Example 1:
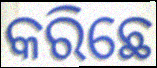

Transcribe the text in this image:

କରିଛେ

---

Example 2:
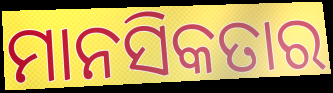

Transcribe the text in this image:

ମାନସିକତାର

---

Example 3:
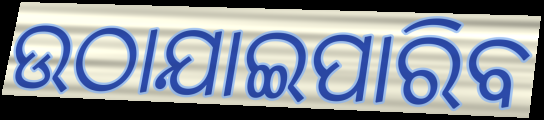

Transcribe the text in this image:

ଉଠାଯାଇପାରିବ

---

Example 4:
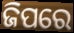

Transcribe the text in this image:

ଜିପରେ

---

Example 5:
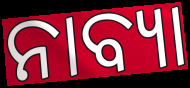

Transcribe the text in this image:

ନାବ୍ୟା